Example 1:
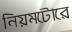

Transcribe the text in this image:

নিয়মটোৱে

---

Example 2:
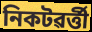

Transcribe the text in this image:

নিকটৱৰ্ত্তী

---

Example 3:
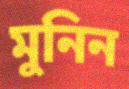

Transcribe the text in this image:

মুনিন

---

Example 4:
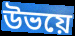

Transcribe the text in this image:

উভয়ে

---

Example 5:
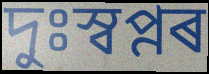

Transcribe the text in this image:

দুঃস্বপ্নৰ